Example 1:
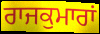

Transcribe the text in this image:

ਰਾਜਕੁਮਾਰਾਂ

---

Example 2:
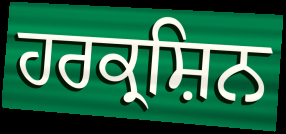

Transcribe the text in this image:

ਹਰਕ੍ਰਸ਼ਿਨ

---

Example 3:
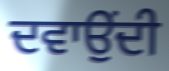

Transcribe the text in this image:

ਦਵਾਉਂਦੀ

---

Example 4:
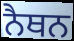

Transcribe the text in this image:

ਨੈਥਨ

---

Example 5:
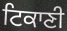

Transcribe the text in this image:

ਟਿਕਾਣੀ